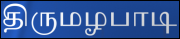
திருமழபாடி